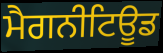
ਮੈਗਨੀਟਿਊਡ